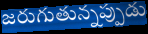
జరుగుతున్నప్పుడు